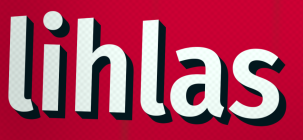
lihlas